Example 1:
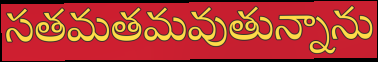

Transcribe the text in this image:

సతమతమవుతున్నాను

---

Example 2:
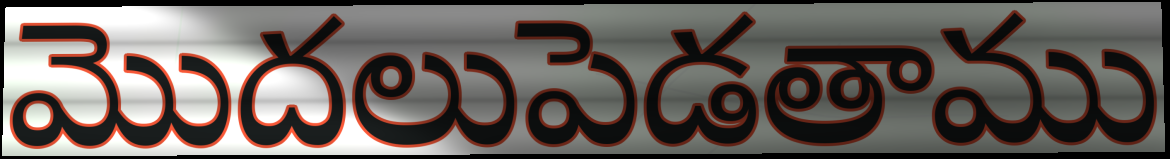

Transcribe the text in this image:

మొదలుపెడతాము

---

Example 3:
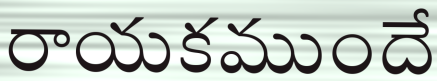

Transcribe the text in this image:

రాయకముందే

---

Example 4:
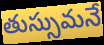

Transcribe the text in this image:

తుస్సుమనే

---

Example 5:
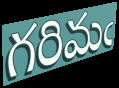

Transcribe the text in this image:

గరిమఁ